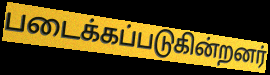
படைக்கப்படுகின்றனர்